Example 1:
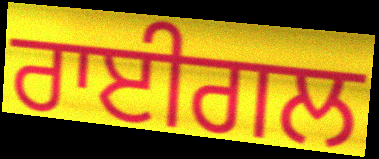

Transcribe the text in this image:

ਰਾਈਗਲ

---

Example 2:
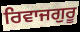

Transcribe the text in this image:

ਰਿਵਾਜਗੁਰੂ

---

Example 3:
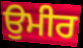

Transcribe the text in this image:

ਉਮੀਰ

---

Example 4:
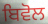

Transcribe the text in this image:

ਬਿਵੋਲ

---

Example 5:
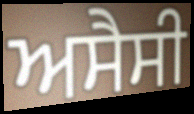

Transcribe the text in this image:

ਅਸੈਸੀ